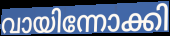
വായിന്നോക്കി